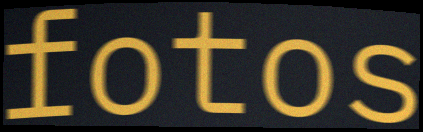
fotos